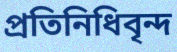
প্রতিনিধিবৃন্দ